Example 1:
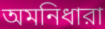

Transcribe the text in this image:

অমনিধারা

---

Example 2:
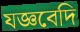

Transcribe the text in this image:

যজ্ঞবেদি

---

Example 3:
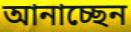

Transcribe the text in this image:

আনাচ্ছেন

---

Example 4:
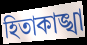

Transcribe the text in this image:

হিতাকাঙ্খা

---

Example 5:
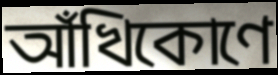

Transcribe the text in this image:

আঁখিকোণে